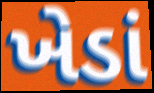
ખેડાં